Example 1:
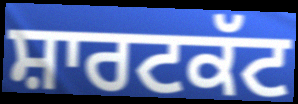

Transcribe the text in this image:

ਸ਼ਾਰਟਕੱਟ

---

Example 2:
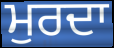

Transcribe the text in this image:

ਮੁਰਦਾ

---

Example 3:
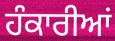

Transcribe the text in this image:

ਹੰਕਾਰੀਆਂ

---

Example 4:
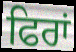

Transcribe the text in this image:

ਫਿਰਾਂ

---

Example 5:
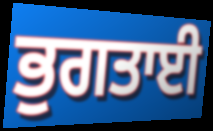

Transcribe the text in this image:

ਭੁਗਤਾਈ